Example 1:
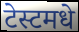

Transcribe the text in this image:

टेस्टमधे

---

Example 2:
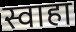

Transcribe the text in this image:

स्वाहा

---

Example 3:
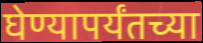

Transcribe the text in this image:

घेण्यापर्यंतच्या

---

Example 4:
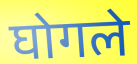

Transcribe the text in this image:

घोगले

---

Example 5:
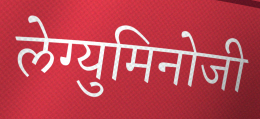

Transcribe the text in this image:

लेग्युमिनोजी